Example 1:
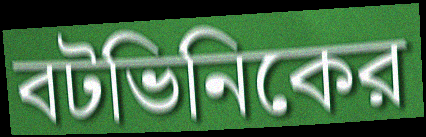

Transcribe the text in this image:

বটভিনিকের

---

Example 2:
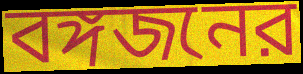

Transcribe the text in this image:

বঙ্গজনের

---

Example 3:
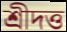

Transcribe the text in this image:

শ্রীদত্ত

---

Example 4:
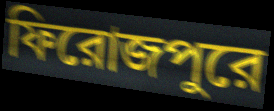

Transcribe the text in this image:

ফিরোজপুরে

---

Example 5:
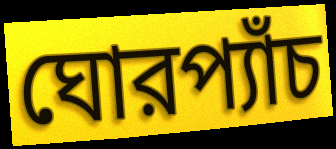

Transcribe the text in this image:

ঘোরপ্যাঁচ